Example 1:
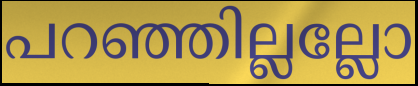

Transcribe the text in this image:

പറഞ്ഞില്ലല്ലോ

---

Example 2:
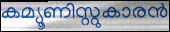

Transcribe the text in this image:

കമ്യൂണിസ്റ്റുകാരൻ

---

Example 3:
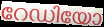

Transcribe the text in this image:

റേഡിയോ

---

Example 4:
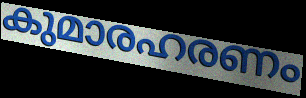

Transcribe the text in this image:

കുമാരഹരണം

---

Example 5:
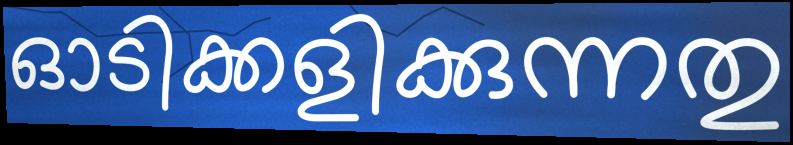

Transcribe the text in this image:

ഓടിക്കളിക്കുന്നതു